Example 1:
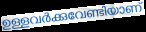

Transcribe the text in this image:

ഉള്ളവർക്കുവേണ്ടിയാണ്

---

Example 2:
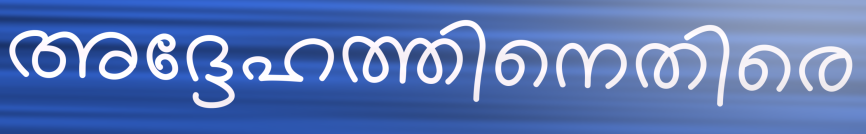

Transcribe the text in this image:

അദ്ദേഹത്തിനെതിരെ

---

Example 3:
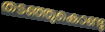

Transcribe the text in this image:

തടഞ്ഞുകൊണ്ടു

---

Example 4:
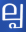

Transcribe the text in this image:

ല്പ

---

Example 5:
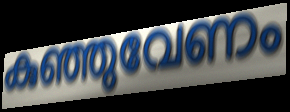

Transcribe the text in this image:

കുഞ്ഞുവേണം